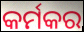
କର୍ମକର